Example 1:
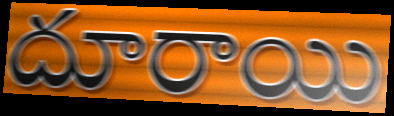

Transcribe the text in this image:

దూరాయి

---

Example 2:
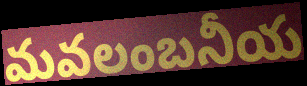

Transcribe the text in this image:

మవలంబనీయ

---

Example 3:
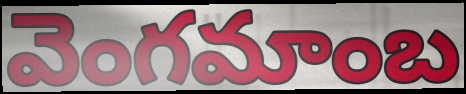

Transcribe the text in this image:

వెంగమాంబ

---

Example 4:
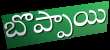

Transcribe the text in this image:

బొప్పాయి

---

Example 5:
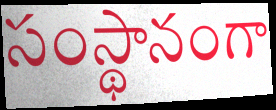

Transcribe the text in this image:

సంస్థానంగా